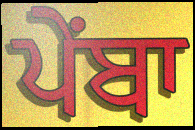
ਪੇਂਬਾ